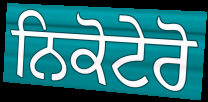
ਨਿਕੋਟੇਰੋ